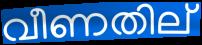
വീണതില്